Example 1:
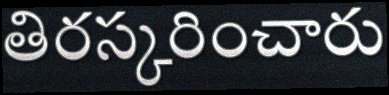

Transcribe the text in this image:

తిరస్కరించారు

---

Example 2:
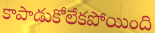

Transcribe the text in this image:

కాపాడుకోలేకపోయింది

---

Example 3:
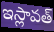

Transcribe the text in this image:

ఇస్లావత్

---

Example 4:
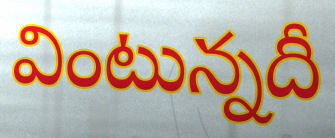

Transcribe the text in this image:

వింటున్నదీ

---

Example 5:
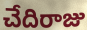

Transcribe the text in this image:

చేదిరాజు